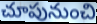
చూపునుంచి